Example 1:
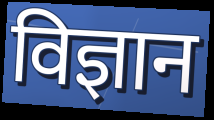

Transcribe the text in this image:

विज्ञान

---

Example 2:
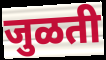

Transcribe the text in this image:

जुळती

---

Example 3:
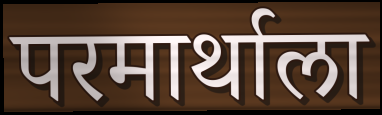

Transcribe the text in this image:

परमार्थाला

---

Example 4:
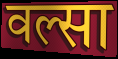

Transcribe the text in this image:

वल्सा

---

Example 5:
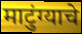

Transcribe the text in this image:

माटुंग्याचे